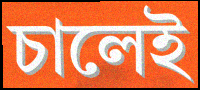
চালেই